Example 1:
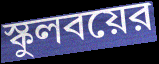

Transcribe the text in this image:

স্কুলবয়ের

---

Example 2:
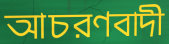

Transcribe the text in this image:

আচরণবাদী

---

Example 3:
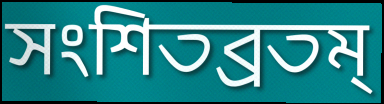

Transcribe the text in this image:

সংশিতব্রতম্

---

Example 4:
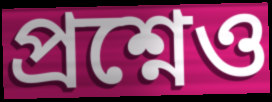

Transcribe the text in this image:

প্রশ্নেও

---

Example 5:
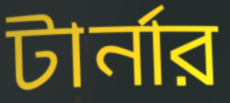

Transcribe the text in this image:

টার্নার